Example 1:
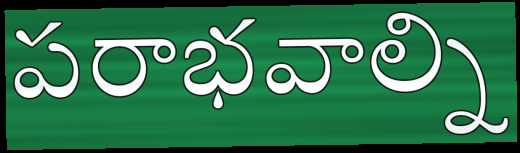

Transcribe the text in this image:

పరాభవాల్ని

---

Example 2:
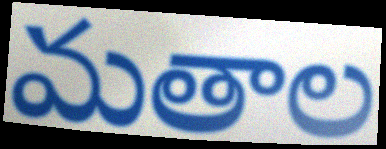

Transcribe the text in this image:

మతాల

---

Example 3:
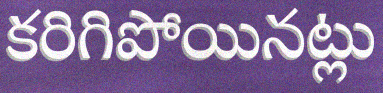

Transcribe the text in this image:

కరిగిపోయినట్లు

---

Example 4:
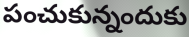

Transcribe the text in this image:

పంచుకున్నందుకు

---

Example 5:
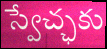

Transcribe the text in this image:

స్వేచ్ఛకు